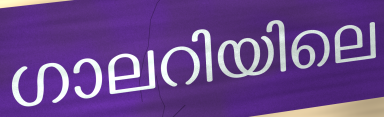
ഗാലറിയിലെ